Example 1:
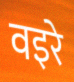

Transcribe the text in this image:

वइरे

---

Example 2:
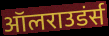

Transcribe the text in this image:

ऑलराउडंर्स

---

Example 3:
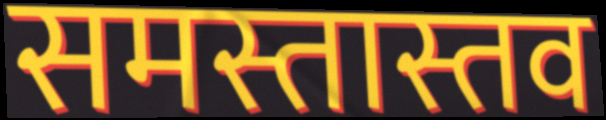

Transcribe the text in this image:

समस्तास्तव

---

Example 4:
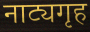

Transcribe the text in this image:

नाट्यगृह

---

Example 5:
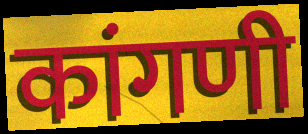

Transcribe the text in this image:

कांगणी